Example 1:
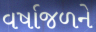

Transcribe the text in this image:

વર્ષાજળને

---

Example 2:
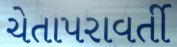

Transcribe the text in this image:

ચેતાપરાવર્તી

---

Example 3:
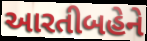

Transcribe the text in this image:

આરતીબહેને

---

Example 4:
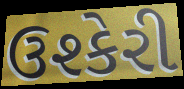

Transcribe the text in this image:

ઉશ્કેરી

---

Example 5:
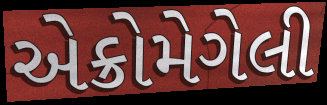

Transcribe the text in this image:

એક્રોમેગેલી